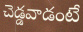
చెడ్డవాడంటే